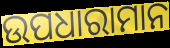
ଉପଧାରାମାନ